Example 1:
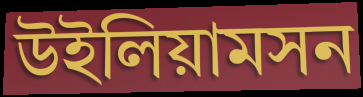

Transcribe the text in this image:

উইলিয়ামসন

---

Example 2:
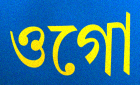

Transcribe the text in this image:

ওগো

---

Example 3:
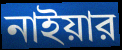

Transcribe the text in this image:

নাইয়ার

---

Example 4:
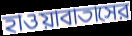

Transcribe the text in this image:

হাওয়াবাতাসের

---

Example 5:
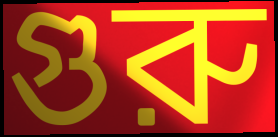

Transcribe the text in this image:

গুরু